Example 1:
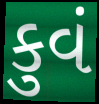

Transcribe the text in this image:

કુવં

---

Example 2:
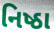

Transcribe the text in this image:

નિષ્ઠા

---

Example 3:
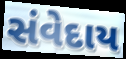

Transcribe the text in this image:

સંવેદાય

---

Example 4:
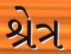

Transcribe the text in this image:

શ્રેત્ર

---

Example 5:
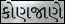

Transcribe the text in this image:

કોણજાણે